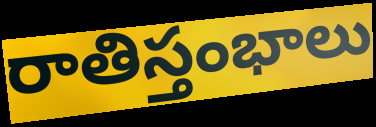
రాతిస్తంభాలు